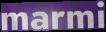
marmi